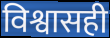
विश्वासही